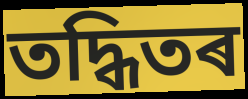
তদ্ধিতৰ